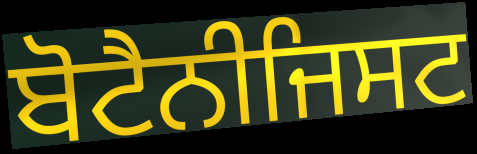
ਬੋਟੈਨੀਜਿਸਟ